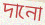
দানো